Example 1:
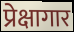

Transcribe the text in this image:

प्रेक्षागार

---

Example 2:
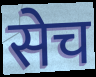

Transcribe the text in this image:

सेच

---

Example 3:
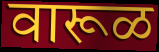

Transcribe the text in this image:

वारूळ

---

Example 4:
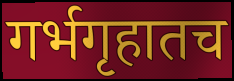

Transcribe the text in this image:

गर्भगृहातच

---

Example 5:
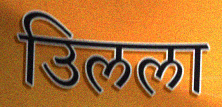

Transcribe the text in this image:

उिलला